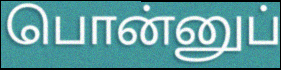
பொன்னுப்